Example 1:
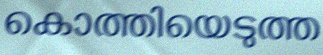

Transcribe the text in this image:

കൊത്തിയെടുത്ത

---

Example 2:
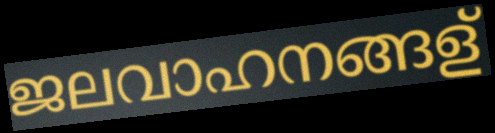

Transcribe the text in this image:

ജലവാഹനങ്ങള്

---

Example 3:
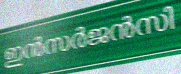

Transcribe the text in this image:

ഇൻസർജൻസി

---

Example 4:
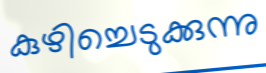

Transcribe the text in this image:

കുഴിച്ചെടുക്കുന്നു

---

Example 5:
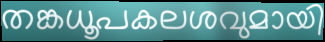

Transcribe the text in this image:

തങ്കധൂപകലശവുമായി